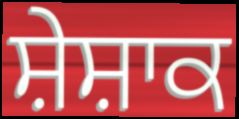
ਸ਼ੇਸ਼ਾਕ